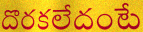
దొరకలేదంటే